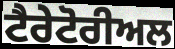
ਟੈਰੇਟੋਰੀਅਲ